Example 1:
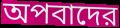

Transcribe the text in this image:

অপবাদের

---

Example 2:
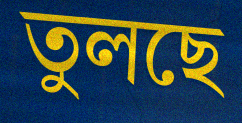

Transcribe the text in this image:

তুলছে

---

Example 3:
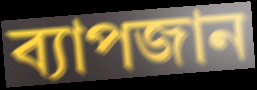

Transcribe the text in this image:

ব্যাপজান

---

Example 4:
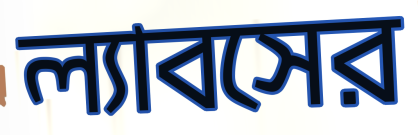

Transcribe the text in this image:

ল্যাবসের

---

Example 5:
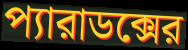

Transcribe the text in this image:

প্যারাডক্সের